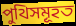
পুথিসমূহত